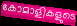
കോമാളികളുടെ